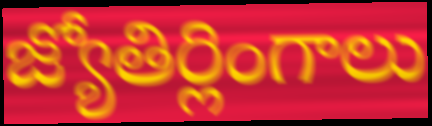
జ్యోతిర్లింగాలు